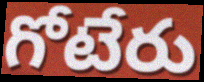
గోటేరు